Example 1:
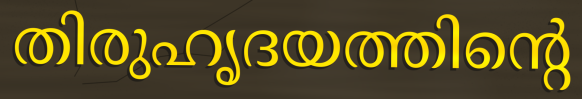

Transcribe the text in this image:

തിരുഹൃദയത്തിന്റെ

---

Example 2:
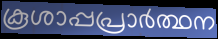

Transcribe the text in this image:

കൂശാപ്പപ്രാർത്ഥന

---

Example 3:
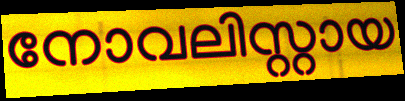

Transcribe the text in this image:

നോവലിസ്റ്റായ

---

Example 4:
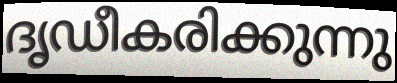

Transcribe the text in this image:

ദൃഡീകരിക്കുന്നു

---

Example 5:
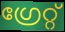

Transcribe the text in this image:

ഗ്രേറ്റ്